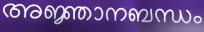
അജ്ഞാനബന്ധം